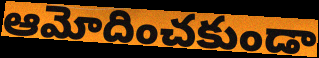
ఆమోదించకుండా